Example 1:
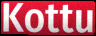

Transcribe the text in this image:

Kottu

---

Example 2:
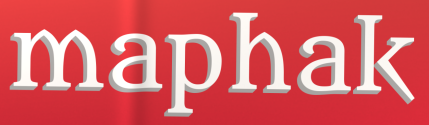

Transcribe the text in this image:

maphak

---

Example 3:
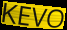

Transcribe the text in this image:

KEVO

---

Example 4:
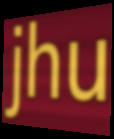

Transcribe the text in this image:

jhu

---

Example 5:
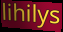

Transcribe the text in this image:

lihilys